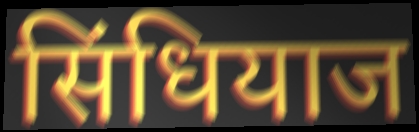
सिंधियाज